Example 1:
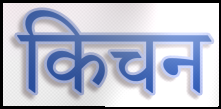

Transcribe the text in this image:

किचन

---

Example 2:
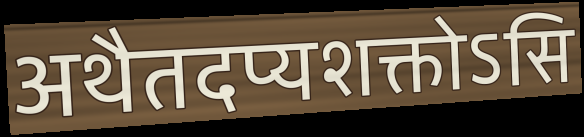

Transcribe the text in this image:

अथैतदप्यशक्तोऽसि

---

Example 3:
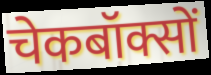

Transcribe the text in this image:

चेकबॉक्सों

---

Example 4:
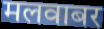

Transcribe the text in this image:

मलवाबर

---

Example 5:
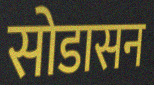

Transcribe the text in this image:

सोडासन